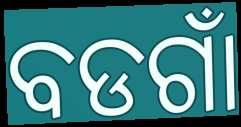
ବଡଗାଁ